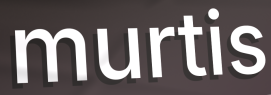
murtis